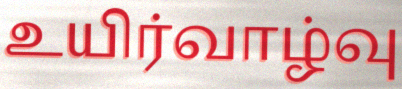
உயிர்வாழ்வு